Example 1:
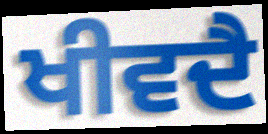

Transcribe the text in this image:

ਖੀਵਦੈ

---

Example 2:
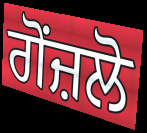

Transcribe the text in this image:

ਗੋਂਜ਼ਲੋ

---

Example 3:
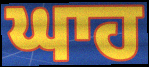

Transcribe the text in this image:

ਘਾਹ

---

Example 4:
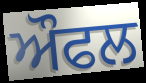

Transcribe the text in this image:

ਔਫਲ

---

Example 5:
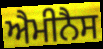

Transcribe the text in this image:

ਐਮੀਨੈਸ